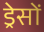
ड्रेसों